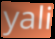
yali